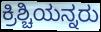
ಕ್ರಿಶ್ಚಿಯನ್ನರು